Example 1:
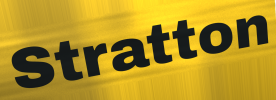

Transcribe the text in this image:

Stratton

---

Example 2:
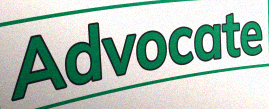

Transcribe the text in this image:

Advocate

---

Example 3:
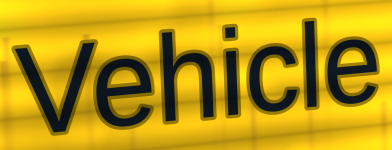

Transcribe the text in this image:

Vehicle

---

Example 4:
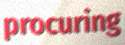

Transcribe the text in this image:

procuring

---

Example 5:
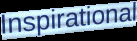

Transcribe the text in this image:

Inspirational